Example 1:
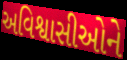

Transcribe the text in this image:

અવિશ્વાસીઓને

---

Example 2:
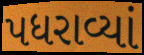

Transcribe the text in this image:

પધરાવ્યાં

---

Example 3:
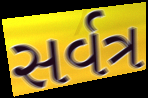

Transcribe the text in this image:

સર્વત્ર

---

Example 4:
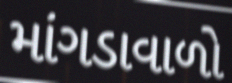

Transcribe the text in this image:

માંગડાવાળો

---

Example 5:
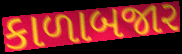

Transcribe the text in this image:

કાળાબજાર